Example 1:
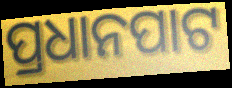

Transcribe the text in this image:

ପ୍ରଧାନପାଟ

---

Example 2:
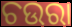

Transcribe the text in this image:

ଚଉରା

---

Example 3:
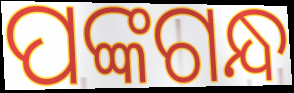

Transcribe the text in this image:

ପଙ୍କଗନ୍ଧ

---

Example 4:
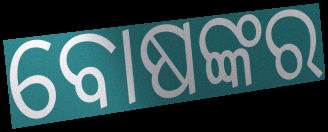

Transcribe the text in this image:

ବୋଷଙ୍କର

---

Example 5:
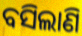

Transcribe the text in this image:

ବସିଲାଣି